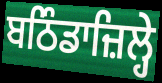
ਬਠਿੰਡਾਜ਼ਿਲ੍ਹੇ